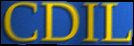
CDIL